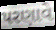
પરણાવે